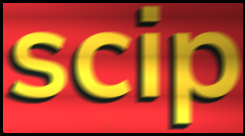
scip